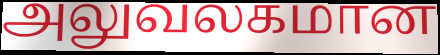
அலுவலகமான